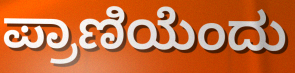
ಪ್ರಾಣಿಯೆಂದು